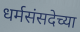
धर्मसंसदेच्या